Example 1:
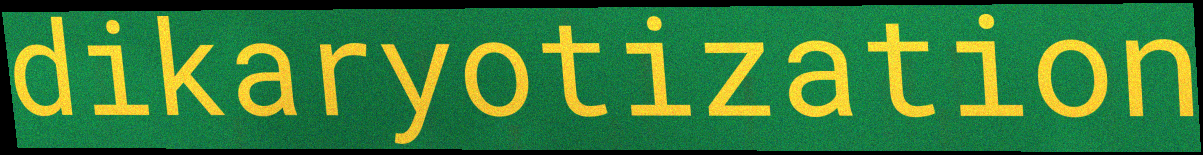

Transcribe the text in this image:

dikaryotization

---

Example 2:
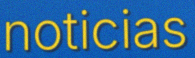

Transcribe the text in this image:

noticias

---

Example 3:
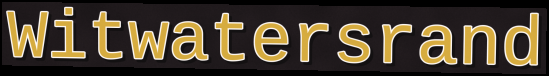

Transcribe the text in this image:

Witwatersrand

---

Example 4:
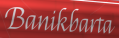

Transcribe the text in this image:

Banikbarta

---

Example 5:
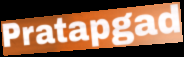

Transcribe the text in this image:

Pratapgad